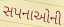
સપનાઓની